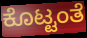
ಕೊಟ್ಟಂತೆ